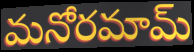
మనోరమామ్